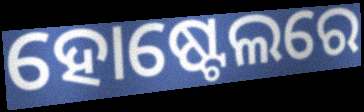
ହୋଷ୍ଟେଲରେ